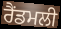
ਰੈਂਡਮਲੀ